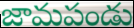
జామపండు